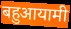
बहुआयामी